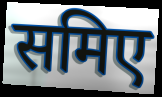
समिए